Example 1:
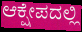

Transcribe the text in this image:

ಆಕ್ಷೇಪದಲ್ಲಿ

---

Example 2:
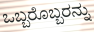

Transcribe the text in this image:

ಒಬ್ಬರೊಬ್ಬರನ್ನು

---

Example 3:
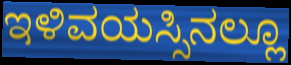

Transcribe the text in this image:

ಇಳಿವಯಸ್ಸಿನಲ್ಲೂ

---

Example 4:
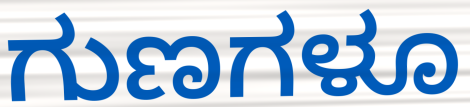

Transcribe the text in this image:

ಗುಣಗಳೂ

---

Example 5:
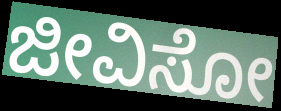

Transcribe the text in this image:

ಜೀವಿಸೋ